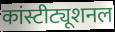
कांस्टीट्यूशनल